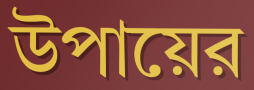
উপায়ের